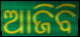
ଆଜିବି